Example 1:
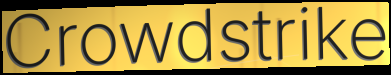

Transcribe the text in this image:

Crowdstrike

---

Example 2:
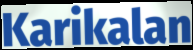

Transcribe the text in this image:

Karikalan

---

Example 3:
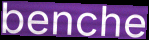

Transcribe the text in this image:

benche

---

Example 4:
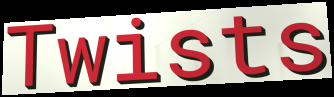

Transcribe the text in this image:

Twists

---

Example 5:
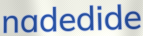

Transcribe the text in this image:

nadedide